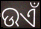
ଉଏଁ